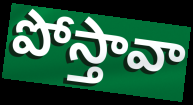
పోస్తావా